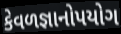
કેવળજ્ઞાનોપયોગ